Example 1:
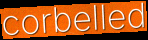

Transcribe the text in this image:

corbelled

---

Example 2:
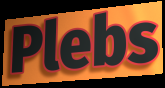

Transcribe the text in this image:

Plebs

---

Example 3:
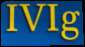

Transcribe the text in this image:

IVIg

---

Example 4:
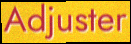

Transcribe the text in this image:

Adjuster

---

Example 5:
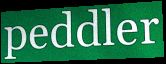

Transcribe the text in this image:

peddler